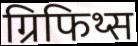
ग्रिफिथ्स